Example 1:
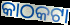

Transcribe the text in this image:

କାଠକଟା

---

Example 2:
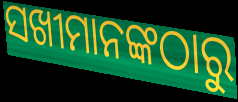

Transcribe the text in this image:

ସଖୀମାନଙ୍କଠାରୁ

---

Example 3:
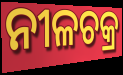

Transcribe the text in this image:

ନୀଳଚକ୍ର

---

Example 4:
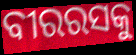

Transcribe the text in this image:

ବୀରରସକୁ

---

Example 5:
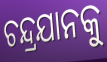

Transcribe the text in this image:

ଚନ୍ଦ୍ରଯାନକୁ